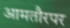
आमतौरपर